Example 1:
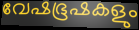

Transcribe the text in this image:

വേഷഭൂഷകളും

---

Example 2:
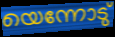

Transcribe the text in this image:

യെന്നോടു്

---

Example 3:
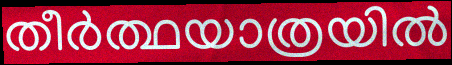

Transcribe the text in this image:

തീർത്ഥയാത്രയിൽ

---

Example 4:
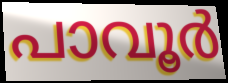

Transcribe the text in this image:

പാവൂർ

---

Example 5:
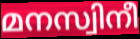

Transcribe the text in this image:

മനസ്വിനീ